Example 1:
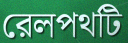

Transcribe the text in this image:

রেলপথটি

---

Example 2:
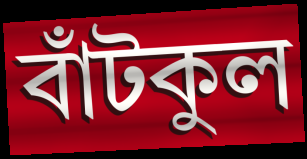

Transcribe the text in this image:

বাঁটকুল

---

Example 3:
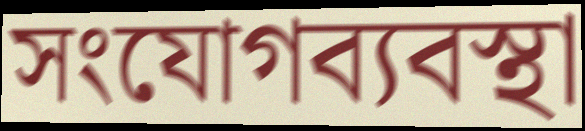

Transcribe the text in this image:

সংযোগব্যবস্থা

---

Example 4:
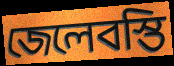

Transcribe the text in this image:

জেলেবস্তি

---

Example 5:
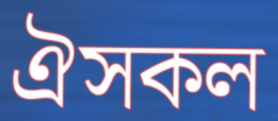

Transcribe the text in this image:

ঐসকল